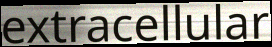
extracellular